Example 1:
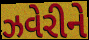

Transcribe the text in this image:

ઝવેરીને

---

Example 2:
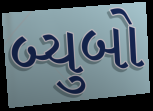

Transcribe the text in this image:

બ્યુબો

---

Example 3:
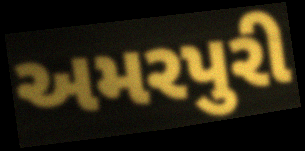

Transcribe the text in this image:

અમરપુરી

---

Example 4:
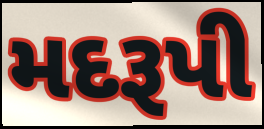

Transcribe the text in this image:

મદરૂપી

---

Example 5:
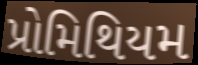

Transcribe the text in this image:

પ્રોમિથિયમ